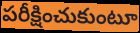
పరీక్షించుకుంటూ